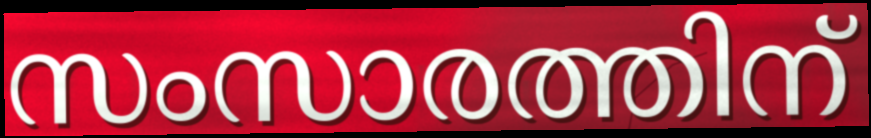
സംസാരത്തിന്